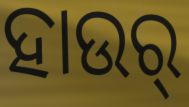
ହାଉର୍